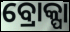
ବ୍ରୋକ୍ପା